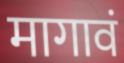
मागावं